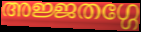
അജ്ജതഗ്ഗേ